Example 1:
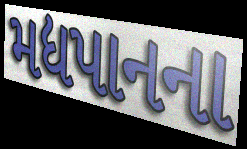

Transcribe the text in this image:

મદ્યપાનના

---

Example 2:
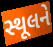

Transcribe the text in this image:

સ્થૂલને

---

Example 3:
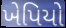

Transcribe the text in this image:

ખેપિયો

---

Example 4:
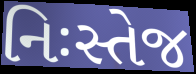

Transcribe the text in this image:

નિઃસ્તેજ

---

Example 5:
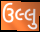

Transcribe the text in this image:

ઉલ્લુ